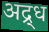
अद्र्ध